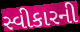
સ્વીકારની